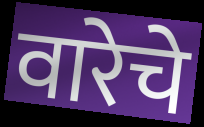
वारेचे